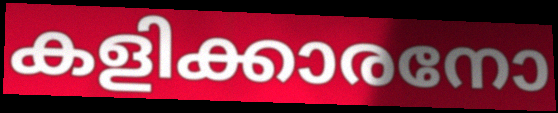
കളിക്കാരനോ